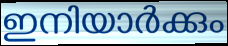
ഇനിയാർക്കും